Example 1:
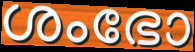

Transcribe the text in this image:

ശംഭോ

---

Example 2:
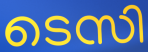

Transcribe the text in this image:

ടെസി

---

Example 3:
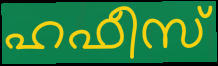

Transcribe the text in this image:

ഹഫീസ്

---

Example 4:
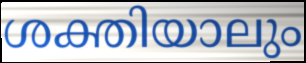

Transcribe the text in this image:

ശക്തിയാലും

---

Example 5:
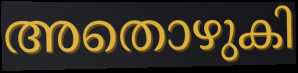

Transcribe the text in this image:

അതൊഴുകി